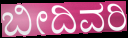
ಬೀದಿವರಿ